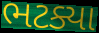
ભટક્યા